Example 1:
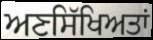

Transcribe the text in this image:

ਅਣਸਿੱਖਿਅਤਾਂ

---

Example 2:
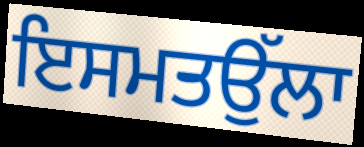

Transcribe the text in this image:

ਇਸਮਤਉੱਲਾ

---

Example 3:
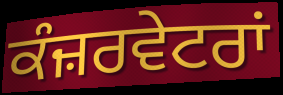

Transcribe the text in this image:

ਕੰਜ਼ਰਵੇਟਰਾਂ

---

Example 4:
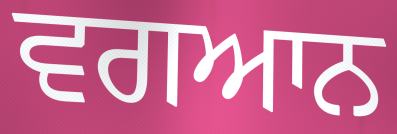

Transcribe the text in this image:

ਵਗਆਨ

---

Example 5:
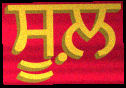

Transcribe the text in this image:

ਸੂਲ਼